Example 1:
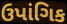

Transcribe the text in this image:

ઉપાંગિક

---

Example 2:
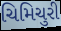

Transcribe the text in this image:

ચિમિચુરી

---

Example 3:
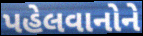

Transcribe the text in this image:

પહેલવાનોને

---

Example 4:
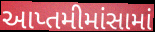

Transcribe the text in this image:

આપ્તમીમાંસામાં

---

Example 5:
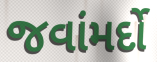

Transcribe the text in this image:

જવાંમર્દો